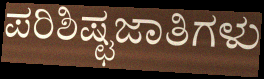
ಪರಿಶಿಷ್ಟಜಾತಿಗಳು